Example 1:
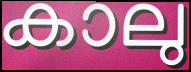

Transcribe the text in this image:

കാലു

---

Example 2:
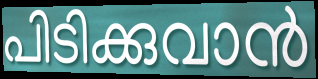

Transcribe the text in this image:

പിടിക്കുവാൻ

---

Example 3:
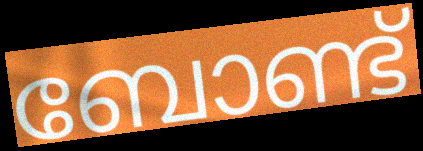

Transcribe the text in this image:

ബോണ്ട്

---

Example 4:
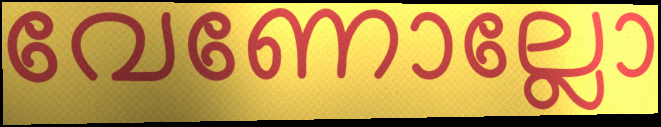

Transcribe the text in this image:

വേണോല്ലോ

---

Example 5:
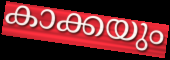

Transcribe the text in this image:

കാക്കയും